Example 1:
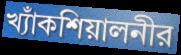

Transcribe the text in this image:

খ্যাঁকশিয়ালনীর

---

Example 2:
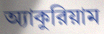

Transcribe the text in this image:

অ্যাকুরিয়াম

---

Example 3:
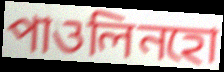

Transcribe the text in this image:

পাওলিনহো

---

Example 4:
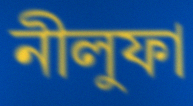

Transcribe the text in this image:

নীলুফা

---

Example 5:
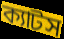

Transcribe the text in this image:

ক্যাটস